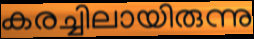
കരച്ചിലായിരുന്നു